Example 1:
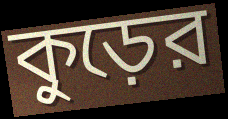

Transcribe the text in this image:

কুড়ের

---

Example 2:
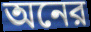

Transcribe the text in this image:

অনের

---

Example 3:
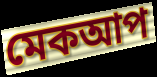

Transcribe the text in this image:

মেকআপ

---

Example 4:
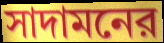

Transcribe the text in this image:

সাদামনের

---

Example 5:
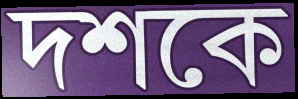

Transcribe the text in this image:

দশকে